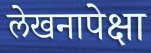
लेखनापेक्षा